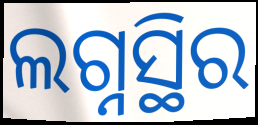
ଲଗ୍ନସ୍ଥିର